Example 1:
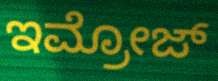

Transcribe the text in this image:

ಇಮ್ರೋಜ್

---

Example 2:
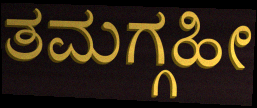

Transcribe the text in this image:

ತಮಗ್ಗಹೀ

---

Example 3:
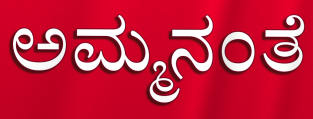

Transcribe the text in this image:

ಅಮ್ಮನಂತೆ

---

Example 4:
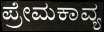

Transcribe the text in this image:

ಪ್ರೇಮಕಾವ್ಯ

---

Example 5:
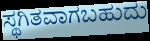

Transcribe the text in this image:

ಸ್ಥಗಿತವಾಗಬಹುದು